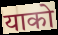
याको